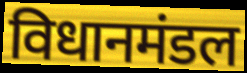
विधानमंडल